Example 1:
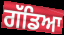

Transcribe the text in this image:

ਗੱਡਿਆ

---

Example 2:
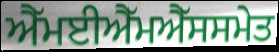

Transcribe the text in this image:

ਐੱਮਈਐੱਮਐੱਸਸਮੇਤ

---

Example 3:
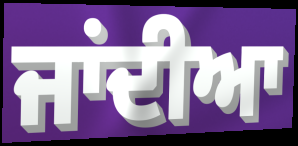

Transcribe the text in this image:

ਜਾਂਦੀਆ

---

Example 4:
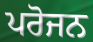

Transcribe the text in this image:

ਪਰੋਜਨ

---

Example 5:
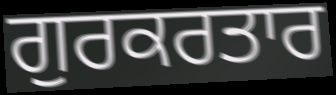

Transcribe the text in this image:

ਗੁਰਕਰਤਾਰ